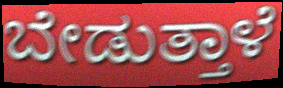
ಬೇಡುತ್ತಾಳೆ